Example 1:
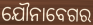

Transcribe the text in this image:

ଯୌନାବେଗର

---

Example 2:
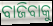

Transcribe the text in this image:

ବାଜିବାକୁ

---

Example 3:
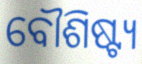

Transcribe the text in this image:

ବୌଶିଷ୍ଟ୍ୟ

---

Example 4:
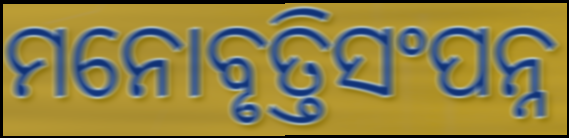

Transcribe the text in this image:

ମନୋବୃତ୍ତିସଂପନ୍ନ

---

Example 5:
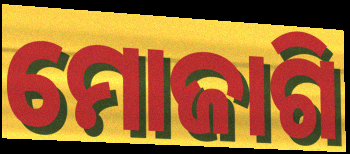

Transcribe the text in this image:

ମୋଜାଗି